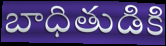
బాధితుడికి